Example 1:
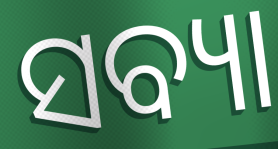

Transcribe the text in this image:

ସବ୍ୟା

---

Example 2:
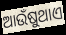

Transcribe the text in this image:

ଆଉଁଷୁଥାଏ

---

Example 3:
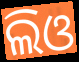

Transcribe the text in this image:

ଲିଓ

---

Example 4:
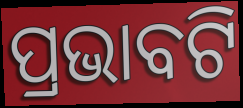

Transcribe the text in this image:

ପ୍ରଭାବଟି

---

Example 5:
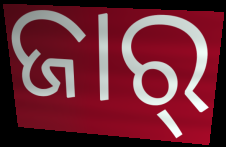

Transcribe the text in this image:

ଜାର୍